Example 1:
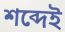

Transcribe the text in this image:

শব্দেই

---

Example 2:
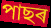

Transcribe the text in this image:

পাছৰ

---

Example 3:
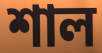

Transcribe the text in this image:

শাল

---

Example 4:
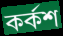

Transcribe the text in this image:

কৰ্কশ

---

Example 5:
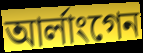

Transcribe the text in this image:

আৰ্লাংগেন